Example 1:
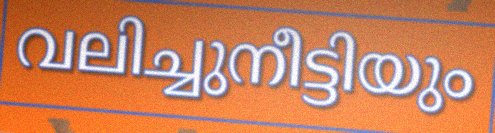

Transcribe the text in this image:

വലിച്ചുനീട്ടിയും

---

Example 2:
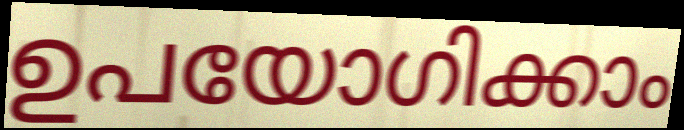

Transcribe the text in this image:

ഉപയോഗിക്കാം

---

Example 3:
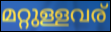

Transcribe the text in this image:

മറ്റുള്ളവര്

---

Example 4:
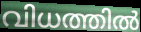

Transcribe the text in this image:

വിധത്തിൽ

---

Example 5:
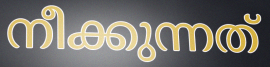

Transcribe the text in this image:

നീക്കുന്നത്